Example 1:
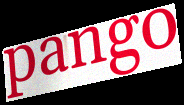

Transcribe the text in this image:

pango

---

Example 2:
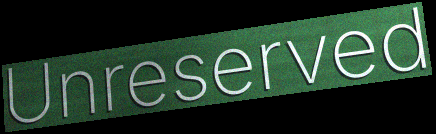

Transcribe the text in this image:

Unreserved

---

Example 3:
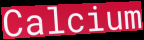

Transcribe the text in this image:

Calcium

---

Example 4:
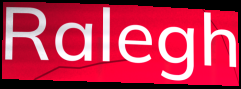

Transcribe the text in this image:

Ralegh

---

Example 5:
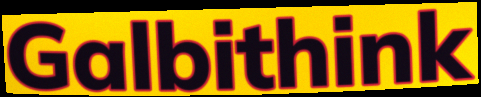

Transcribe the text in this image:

Galbithink